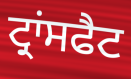
ਟ੍ਰਾਂਸਫੈਟ